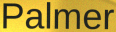
Palmer